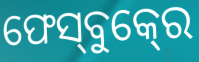
ଫେସ୍‍ବୁକ୍‍ରେ